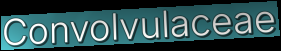
Convolvulaceae